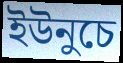
ইউনুচে